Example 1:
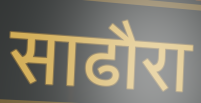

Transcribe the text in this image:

साढौरा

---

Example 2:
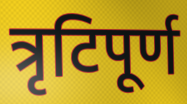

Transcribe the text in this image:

त्रृटिपूर्ण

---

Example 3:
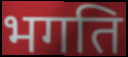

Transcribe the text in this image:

भगति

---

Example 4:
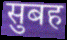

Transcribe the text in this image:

सुबह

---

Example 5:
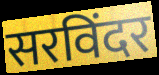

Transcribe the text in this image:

सरविंदर